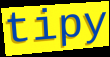
tipy